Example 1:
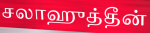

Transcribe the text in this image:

சலாஹுத்தீன்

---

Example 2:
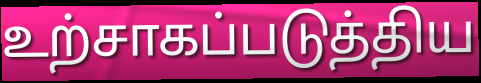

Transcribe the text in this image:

உற்சாகப்படுத்திய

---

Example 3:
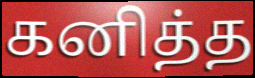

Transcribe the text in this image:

கனித்த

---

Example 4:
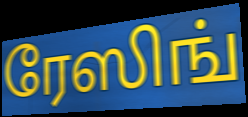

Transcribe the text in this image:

ரேஸிங்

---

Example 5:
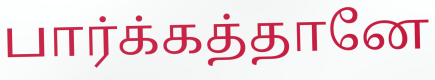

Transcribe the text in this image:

பார்க்கத்தானே